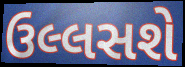
ઉલ્લસશે